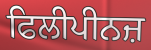
ਫਿਲੀਪੀਨਜ਼